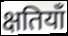
क्षतियाँ